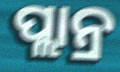
ପ୍ଲାନ୍ର